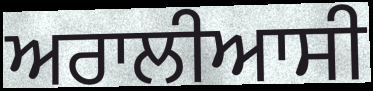
ਅਰਾਲੀਆਸੀ